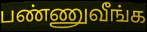
பண்ணுவீங்க